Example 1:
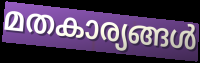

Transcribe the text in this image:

മതകാര്യങ്ങൾ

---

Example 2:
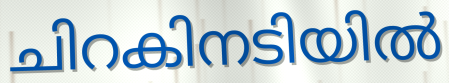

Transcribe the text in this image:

ചിറകിനടിയിൽ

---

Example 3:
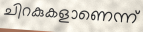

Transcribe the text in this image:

ചിറകുകളാണെന്ന്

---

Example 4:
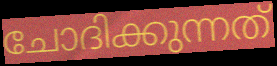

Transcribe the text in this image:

ചോദിക്കുന്നത്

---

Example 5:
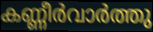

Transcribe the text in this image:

കണ്ണീർവാർത്തു